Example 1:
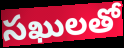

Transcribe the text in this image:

సఖులతో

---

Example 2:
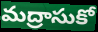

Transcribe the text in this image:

మద్రాసుకో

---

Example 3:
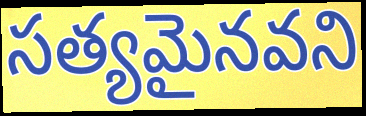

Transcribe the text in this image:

సత్యమైనవని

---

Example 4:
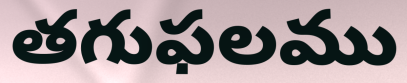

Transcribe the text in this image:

తగుఫలము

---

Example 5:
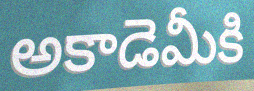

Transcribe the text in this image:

అకాడెమీకి